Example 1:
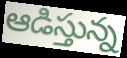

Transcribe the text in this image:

ఆడిస్తున్న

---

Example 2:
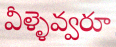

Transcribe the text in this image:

వీళ్ళెవ్వరూ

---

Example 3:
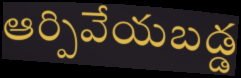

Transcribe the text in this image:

ఆర్పివేయబడ్డ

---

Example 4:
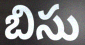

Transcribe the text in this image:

బిసు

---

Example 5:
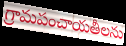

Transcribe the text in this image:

గ్రామపంచాయతీలను